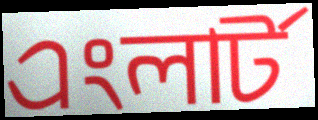
এংলার্ট